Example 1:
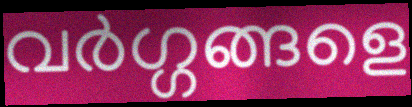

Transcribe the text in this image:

വർഗ്ഗങ്ങളെ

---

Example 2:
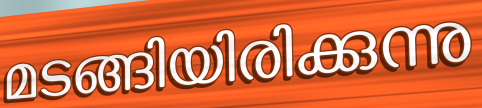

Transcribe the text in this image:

മടങ്ങിയിരിക്കുന്നു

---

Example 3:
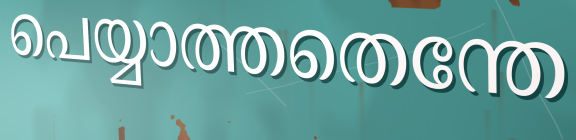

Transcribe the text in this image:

പെയ്യാത്തതെന്തേ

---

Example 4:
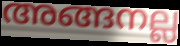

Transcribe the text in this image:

അങ്ങനല്ല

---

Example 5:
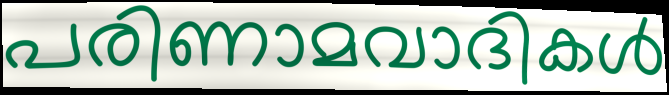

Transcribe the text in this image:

പരിണാമവാദികൾ